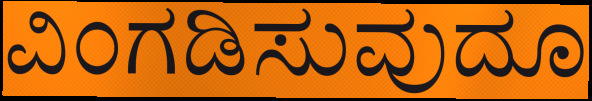
ವಿಂಗಡಿಸುವುದೂ